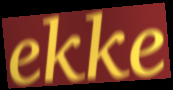
ekke